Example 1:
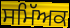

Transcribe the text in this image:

ਸਮਿੱਅਕ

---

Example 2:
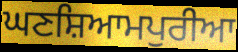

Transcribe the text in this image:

ਘਣਸ਼ਿਆਮਪੁਰੀਆ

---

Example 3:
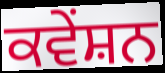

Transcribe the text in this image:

ਕਵੇਂਸ਼ਨ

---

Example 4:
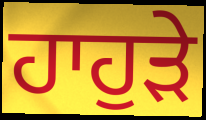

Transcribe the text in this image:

ਹਾਹੁੜੇ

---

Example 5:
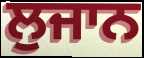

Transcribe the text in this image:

ਲੁਜਾਨ